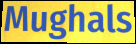
Mughals